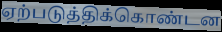
ஏற்படுத்திக்கொண்டன